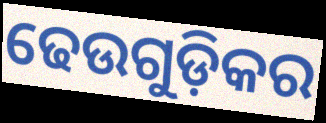
ଢେଉଗୁଡ଼ିକର